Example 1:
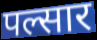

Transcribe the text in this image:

पल्सार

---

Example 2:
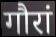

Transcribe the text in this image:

गौरां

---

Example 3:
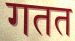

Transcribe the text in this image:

गतत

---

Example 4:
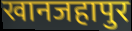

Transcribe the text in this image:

खानजहापुर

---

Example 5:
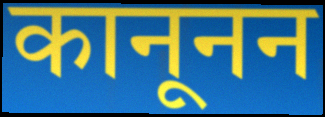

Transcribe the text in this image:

कानूनन